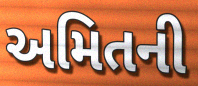
અમિતની